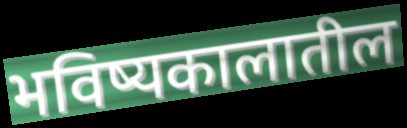
भविष्यकालातील